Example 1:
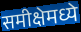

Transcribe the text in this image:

समीक्षेमध्ये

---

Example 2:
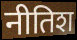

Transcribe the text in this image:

नीतिश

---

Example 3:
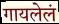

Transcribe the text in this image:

गायलेलं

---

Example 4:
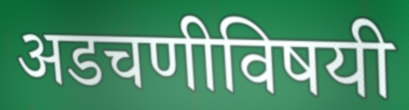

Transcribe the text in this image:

अडचणीविषयी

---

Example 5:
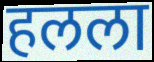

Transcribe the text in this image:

हलला